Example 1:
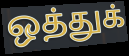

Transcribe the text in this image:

ஒத்துக்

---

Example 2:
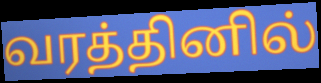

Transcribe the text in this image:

வரத்தினில்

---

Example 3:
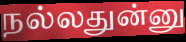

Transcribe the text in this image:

நல்லதுன்னு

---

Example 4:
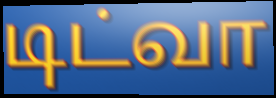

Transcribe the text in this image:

டிட்வா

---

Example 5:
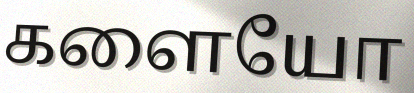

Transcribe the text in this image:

களையோ